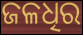
ଜଳଧିର